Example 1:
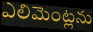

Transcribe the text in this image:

ఎలిమెంట్లను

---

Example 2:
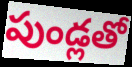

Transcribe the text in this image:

పుండ్లతో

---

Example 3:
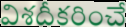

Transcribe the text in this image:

విశదీకరించే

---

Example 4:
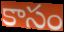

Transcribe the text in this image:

కాసం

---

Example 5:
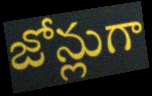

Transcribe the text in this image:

జోన్లుగా